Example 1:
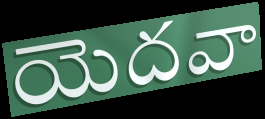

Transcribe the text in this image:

యెదవా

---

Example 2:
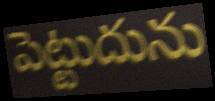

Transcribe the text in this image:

పెట్టుదును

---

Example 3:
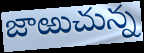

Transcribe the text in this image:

జాఱుచున్న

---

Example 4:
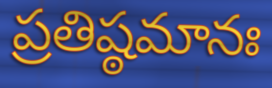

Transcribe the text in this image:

ప్రతిష్ఠమానః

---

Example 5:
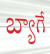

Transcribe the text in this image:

బ్యాగే